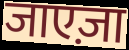
जाएज़ा